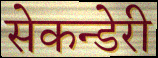
सेकन्डेरी